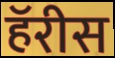
हॅरीस